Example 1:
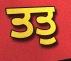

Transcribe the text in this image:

ਤਤੁ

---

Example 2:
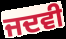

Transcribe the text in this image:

ਜਦਵੀ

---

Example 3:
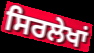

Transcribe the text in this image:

ਸਿਰਲੇਖਾਂ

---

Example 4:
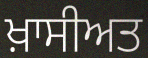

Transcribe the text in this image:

ਖ਼ਾਸੀਅਤ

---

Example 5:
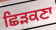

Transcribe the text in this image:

ਛਿੜਕਣਾ